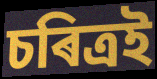
চৰিত্ৰই